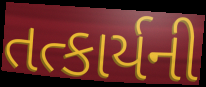
તત્કાર્યની